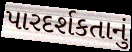
પારદર્શકતાનું